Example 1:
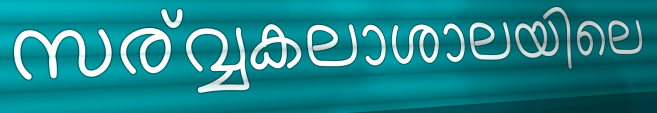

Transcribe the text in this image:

സര്വ്വകലാശാലയിലെ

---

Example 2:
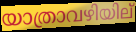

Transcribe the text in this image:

യാത്രാവഴിയില്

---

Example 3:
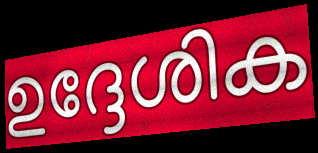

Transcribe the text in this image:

ഉദ്ദേശിക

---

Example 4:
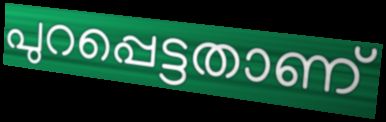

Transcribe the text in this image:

പുറപ്പെട്ടതാണ്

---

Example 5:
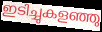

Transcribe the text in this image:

ഇടിച്ചുകളഞ്ഞു